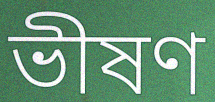
ভীষণ